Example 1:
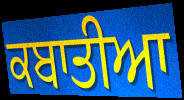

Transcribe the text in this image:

ਕਬਾਤੀਆ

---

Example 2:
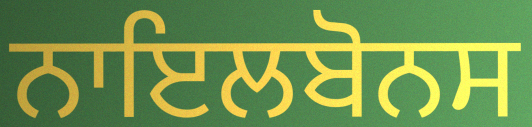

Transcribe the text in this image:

ਨਾਇਲਬੋਨਸ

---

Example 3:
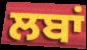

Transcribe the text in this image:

ਲਬਾਂ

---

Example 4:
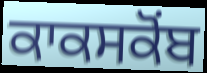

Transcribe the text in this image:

ਕਾਕਸਕੋਂਬ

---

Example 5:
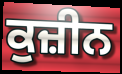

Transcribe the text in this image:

ਕੁਜ਼ੀਨ